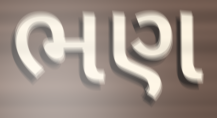
ભણ